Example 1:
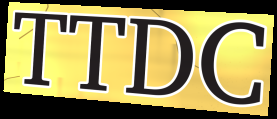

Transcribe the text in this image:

TTDC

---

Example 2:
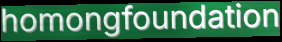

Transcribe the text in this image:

homongfoundation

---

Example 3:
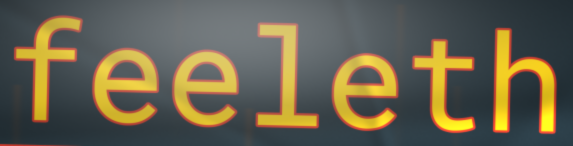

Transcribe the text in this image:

feeleth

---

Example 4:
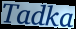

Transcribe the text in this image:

Tadka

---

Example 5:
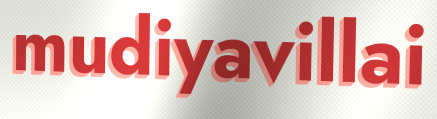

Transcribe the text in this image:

mudiyavillai